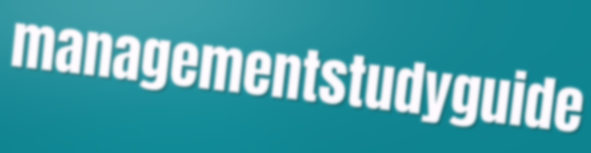
managementstudyguide